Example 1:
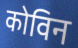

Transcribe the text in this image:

कोविन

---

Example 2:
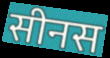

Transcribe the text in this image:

सीनस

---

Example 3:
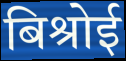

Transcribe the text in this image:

बिश्रोई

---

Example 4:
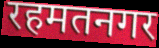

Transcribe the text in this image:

रहमतनगर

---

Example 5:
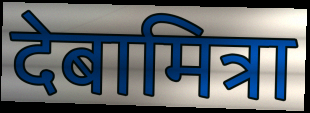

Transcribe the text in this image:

देबामित्रा